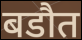
बडौत